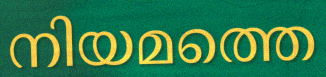
നിയമത്തെ